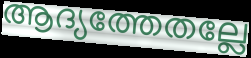
ആദ്യത്തേതല്ലേ